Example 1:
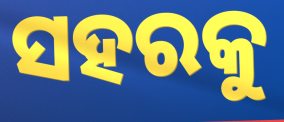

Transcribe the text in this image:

ସହରକୁ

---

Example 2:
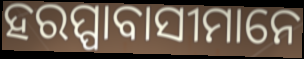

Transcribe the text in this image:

ହରପ୍ପାବାସୀମାନେ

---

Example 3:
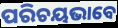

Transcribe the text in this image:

ପରିଚୟଭାବେ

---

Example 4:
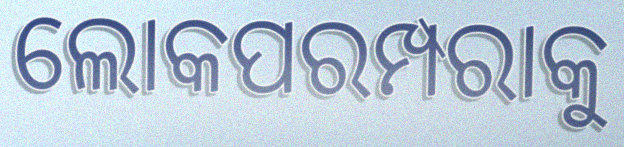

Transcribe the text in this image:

ଲୋକପରମ୍ପରାକୁ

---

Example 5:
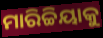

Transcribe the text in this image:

ମାରିଚ୍ଚିୟାକୁ